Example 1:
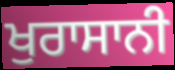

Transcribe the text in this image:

ਖੁਰਾਸਾਨੀ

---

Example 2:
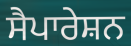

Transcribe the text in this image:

ਸੈਪਾਰੇਸ਼ਨ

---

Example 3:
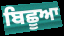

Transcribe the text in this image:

ਬਿਛੂਆ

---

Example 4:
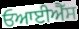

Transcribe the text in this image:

ਓਆਈਐੱਸ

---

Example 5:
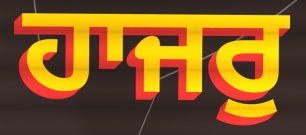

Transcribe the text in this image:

ਹਾਜਰੁ